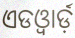
ଏଡଓ୍ବାର୍ଡ଼